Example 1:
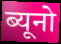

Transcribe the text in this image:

ब्यूनो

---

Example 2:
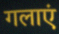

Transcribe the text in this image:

गलाएं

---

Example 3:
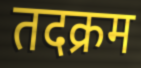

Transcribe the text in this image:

तदक्रम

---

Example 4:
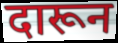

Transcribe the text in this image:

दारून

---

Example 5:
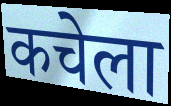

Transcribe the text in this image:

कचेला